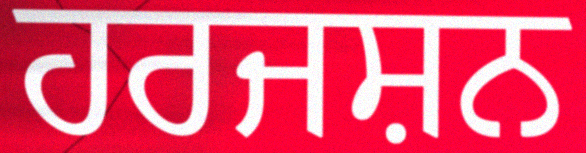
ਹਰਜਸ਼ਨ